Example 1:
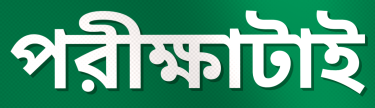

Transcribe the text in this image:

পরীক্ষাটাই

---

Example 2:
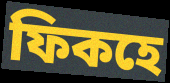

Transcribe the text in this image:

ফিকহে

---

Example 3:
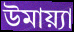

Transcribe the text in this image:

উমায়্যা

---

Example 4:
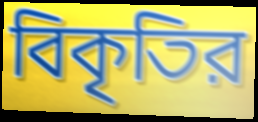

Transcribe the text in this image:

বিকৃতির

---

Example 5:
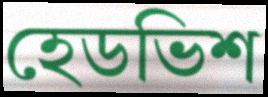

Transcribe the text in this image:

হেডভিশ